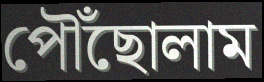
পৌঁছোলাম